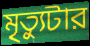
মৃত্যুটার